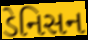
ડેનિસન